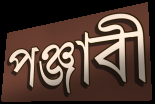
পঞ্জাবী